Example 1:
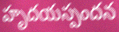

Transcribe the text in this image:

హృదయస్పందన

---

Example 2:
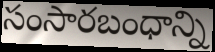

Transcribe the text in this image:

సంసారబంధాన్ని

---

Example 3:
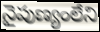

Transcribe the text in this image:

నైపుణ్యంలేని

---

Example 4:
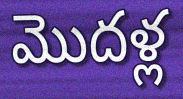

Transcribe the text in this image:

మొదళ్ల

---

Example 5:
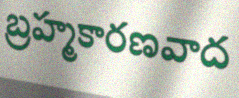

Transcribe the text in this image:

బ్రహ్మకారణవాద